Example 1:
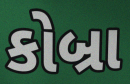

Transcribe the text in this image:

કોબ્રા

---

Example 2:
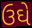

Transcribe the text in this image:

ઉઘે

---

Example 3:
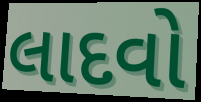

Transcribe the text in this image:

લાદવો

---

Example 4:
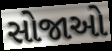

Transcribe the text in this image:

સોજાઓ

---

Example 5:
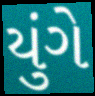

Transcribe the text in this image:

યુંગે